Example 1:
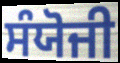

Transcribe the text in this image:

ਸੰਯੋਜੀ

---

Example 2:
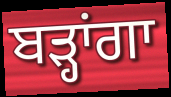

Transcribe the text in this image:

ਬੜ੍ਹਾਂਗਾ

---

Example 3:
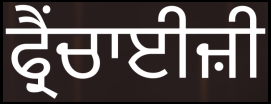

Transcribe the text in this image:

ਫ੍ਰੈਂਚਾਈਜ਼ੀ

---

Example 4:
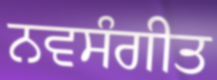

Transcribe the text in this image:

ਨਵਸੰਗੀਤ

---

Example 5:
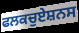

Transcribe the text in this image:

ਫਲਕਚੁਏਸ਼ਨਸ